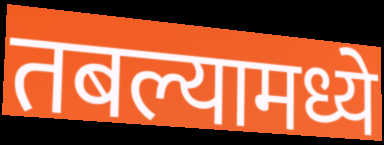
तबल्यामध्ये